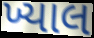
ખ્યાલ